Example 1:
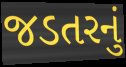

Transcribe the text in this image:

જડતરનું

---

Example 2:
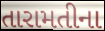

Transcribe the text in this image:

તારામતીના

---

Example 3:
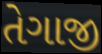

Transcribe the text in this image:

તેગાજી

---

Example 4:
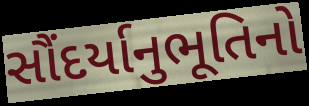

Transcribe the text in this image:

સૌંદર્યાનુભૂતિનો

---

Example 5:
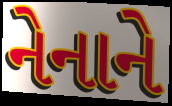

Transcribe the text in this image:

નેનાને